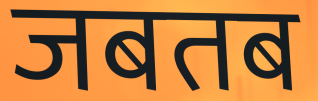
जबतब